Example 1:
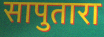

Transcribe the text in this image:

सापुतारा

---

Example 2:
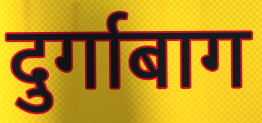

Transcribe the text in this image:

दुर्गाबाग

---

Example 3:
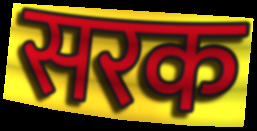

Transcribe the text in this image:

सरक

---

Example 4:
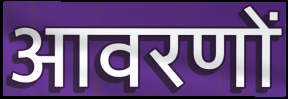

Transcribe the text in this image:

आवरणों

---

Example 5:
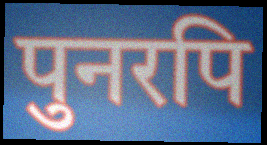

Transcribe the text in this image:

पुनरपि